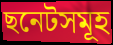
ছনেটসমূহ